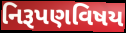
નિરૂપણવિષય